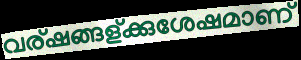
വര്ഷങ്ങള്ക്കുശേഷമാണ്